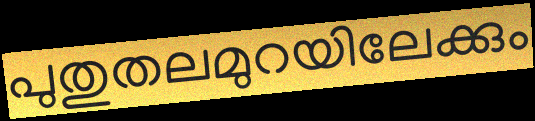
പുതുതലമുറയിലേക്കും